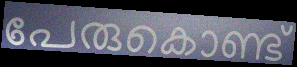
പേരുകൊണ്ട്